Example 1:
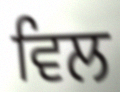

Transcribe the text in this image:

ਵਿਲ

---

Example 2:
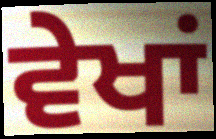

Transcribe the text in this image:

ਵੇਖਾਂ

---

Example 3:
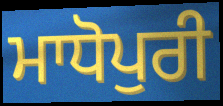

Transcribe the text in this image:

ਮਾਧੋਪੁਰੀ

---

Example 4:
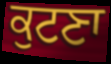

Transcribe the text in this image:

ਕੁਟਣਾ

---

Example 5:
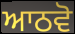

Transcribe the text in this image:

ਆਠਵੋ